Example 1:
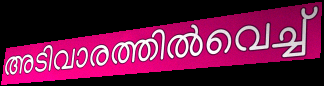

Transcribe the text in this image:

അടിവാരത്തിൽവെച്ച്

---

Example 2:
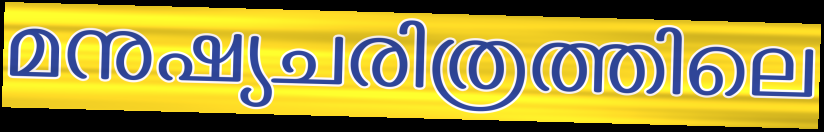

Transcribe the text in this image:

മനുഷ്യചരിത്രത്തിലെ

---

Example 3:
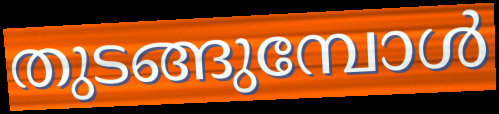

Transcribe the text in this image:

തുടങ്ങുമ്പോൾ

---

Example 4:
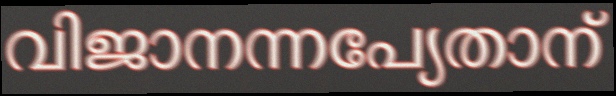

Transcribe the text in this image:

വിജാനന്നപ്യേതാന്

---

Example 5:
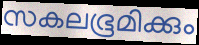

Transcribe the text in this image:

സകലഭൂമിക്കും